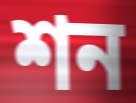
শন